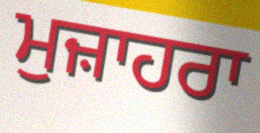
ਮੁਜ਼ਾਹਰਾ